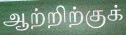
ஆற்றிற்குக்